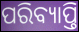
ପରିବ୍ୟାପ୍ତି